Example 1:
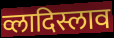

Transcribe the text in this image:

व्लादिस्लाव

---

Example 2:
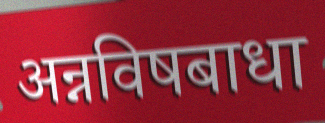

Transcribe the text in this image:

अन्नविषबाधा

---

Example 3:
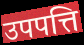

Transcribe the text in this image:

उपपत्ति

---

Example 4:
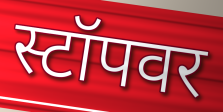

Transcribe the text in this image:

स्टॉपवर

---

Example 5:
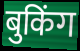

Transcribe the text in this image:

बुकिंग